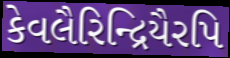
કેવલૈરિન્દ્રિયૈરપિ